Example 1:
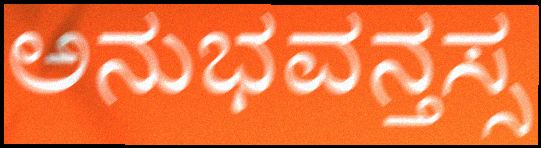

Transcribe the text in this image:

ಅನುಭವನ್ತಸ್ಸ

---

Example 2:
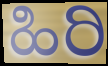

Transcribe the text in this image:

ಹಿರಿ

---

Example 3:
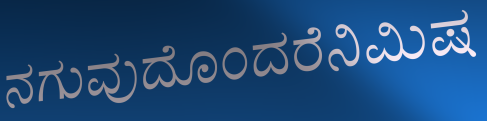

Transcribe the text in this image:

ನಗುವುದೊಂದರೆನಿಮಿಷ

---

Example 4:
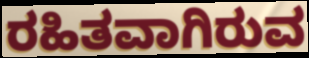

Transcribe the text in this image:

ರಹಿತವಾಗಿರುವ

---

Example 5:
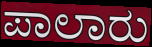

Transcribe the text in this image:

ಪಾಲಾರು